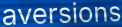
aversions